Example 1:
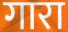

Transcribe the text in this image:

गारा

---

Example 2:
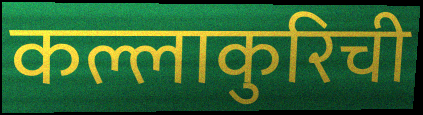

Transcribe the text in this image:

कल्लाकुरिची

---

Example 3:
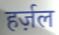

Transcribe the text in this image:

हर्ज़ल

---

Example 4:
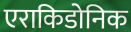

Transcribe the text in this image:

एराकिडोनिक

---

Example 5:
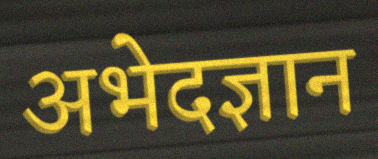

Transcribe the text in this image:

अभेदज्ञान